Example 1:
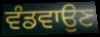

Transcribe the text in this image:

ਵੰਡਵਾਉਣ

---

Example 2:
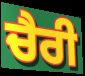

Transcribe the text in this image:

ਚੈਰੀ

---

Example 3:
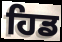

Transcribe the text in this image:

ਹਿਡ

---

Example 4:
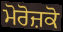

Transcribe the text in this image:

ਮੋਰੋਜ਼ਕੋ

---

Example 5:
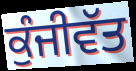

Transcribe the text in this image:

ਕੁੰਜੀਵੱਤ